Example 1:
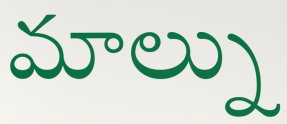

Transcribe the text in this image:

మాల్ను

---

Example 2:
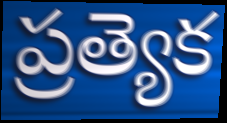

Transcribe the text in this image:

ప్రత్యెక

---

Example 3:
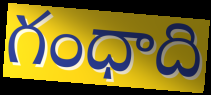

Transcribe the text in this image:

గంధాది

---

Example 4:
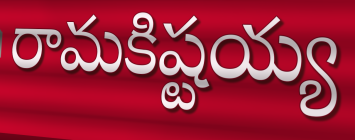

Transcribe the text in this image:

రామకిష్టయ్య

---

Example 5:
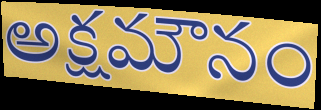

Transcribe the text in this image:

అక్షమౌనం